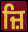
ਜ਼ਿ